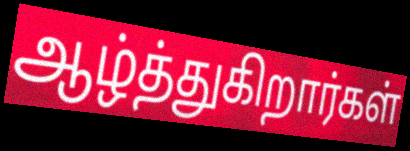
ஆழ்த்துகிறார்கள்